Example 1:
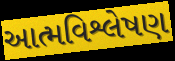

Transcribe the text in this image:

આત્મવિશ્લેષણ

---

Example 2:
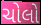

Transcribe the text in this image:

ચોલો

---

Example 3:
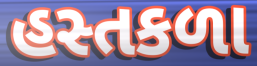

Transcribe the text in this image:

હસ્તકળા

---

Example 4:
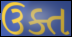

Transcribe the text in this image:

ઉક્ત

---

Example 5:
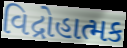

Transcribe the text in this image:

વિદ્રોહાત્મક